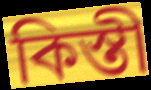
কিস্তী